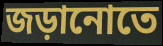
জড়ানোতে